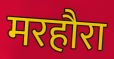
मरहौरा